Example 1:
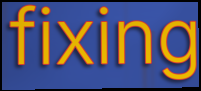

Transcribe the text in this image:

fixing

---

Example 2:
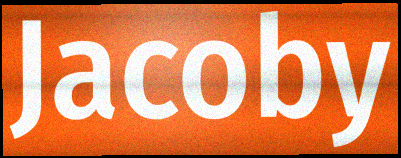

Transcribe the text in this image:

Jacoby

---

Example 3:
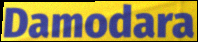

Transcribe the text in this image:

Damodara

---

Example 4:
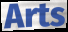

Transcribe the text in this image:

Arts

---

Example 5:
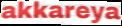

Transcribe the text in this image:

akkareya